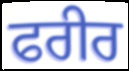
ਫਰੀਰ